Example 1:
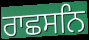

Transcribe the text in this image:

ਰਾਛਸਨਿ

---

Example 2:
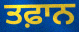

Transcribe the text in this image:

ਤਫ਼ਾਨ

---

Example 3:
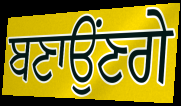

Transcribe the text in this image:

ਬਣਾਉਂਣਗੇ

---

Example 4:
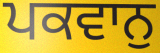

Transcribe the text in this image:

ਪਕਵਾਨੁ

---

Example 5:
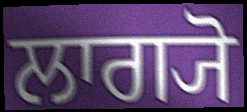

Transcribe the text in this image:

ਲਾਗ੍ਯੋ